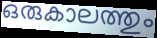
ഒരുകാലത്തും